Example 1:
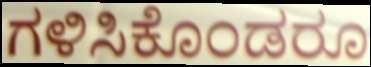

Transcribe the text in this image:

ಗಳಿಸಿಕೊಂಡರೂ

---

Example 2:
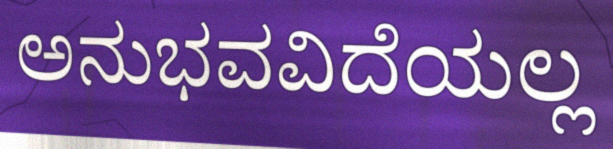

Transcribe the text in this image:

ಅನುಭವವಿದೆಯಲ್ಲ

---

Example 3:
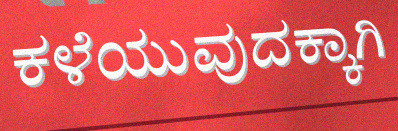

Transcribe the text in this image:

ಕಳೆಯುವುದಕ್ಕಾಗಿ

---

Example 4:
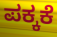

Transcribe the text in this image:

ಪಕ್ಕಕೆ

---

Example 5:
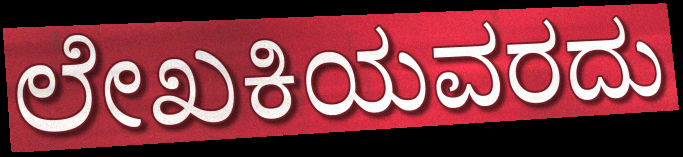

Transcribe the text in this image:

ಲೇಖಕಿಯವರದು